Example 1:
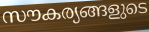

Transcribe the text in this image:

സൗകര്യങ്ങളുടെ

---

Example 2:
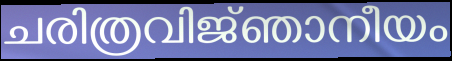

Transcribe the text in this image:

ചരിത്രവിജ്‌ഞാനീയം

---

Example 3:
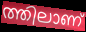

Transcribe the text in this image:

ത്തിലാണ്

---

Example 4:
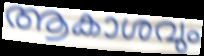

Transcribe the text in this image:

ആകാശവും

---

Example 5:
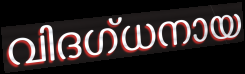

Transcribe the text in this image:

വിദഗ്ധനായ